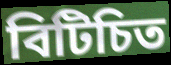
বিটিচিত